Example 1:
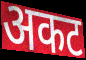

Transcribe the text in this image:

अकट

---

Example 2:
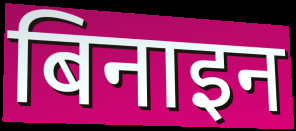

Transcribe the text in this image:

बिनाइन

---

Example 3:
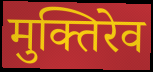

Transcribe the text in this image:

मुक्तिरेव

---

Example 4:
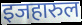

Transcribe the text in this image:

इजहारुल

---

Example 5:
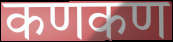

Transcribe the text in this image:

कणकण